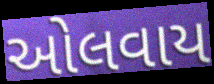
ઓલવાય